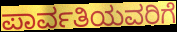
ಪಾರ್ವತಿಯವರಿಗೆ